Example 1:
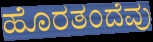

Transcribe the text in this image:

ಹೊರತಂದೆವು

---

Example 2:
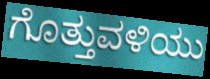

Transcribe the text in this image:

ಗೊತ್ತುವಳಿಯು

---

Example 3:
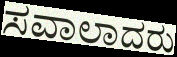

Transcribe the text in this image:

ಸವಾಲಾದರು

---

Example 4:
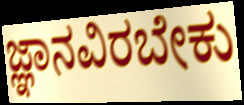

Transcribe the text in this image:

ಜ್ಞಾನವಿರಬೇಕು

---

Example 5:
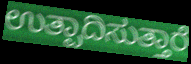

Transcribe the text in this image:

ಉತ್ಪಾದಿಸುತ್ತಾರೆ